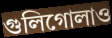
গুলিগোলাও